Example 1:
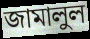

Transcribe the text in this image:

জামালুল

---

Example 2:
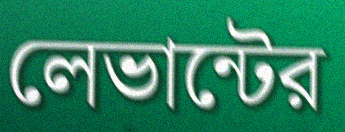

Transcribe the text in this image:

লেভান্টের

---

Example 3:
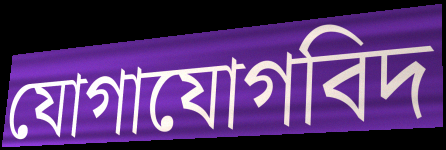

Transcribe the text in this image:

যোগাযোগবিদ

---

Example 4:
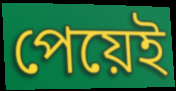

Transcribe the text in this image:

পেয়েই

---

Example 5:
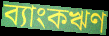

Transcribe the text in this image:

ব্যাংকঋণ